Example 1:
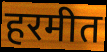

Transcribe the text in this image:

हरमीत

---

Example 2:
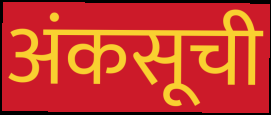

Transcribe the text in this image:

अंकसूची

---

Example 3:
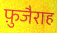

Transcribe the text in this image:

फ़ुजैराह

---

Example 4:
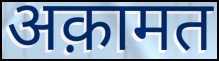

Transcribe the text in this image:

अक़ामत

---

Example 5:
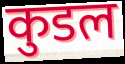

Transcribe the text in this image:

कुडल